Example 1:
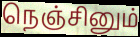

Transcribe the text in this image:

நெஞ்சினும்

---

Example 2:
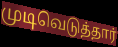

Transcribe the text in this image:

முடிவெடுத்தார்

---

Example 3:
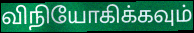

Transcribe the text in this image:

விநியோகிக்கவும்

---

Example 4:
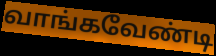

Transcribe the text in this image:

வாங்கவேண்டி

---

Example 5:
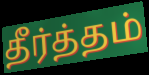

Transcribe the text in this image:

தீர்த்தம்